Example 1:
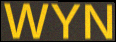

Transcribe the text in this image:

WYN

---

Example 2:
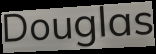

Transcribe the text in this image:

Douglas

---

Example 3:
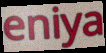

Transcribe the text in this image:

eniya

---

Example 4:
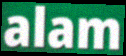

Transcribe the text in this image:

alam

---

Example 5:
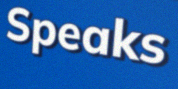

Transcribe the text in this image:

Speaks